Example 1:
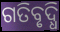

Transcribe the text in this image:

ଗତିବୃଦ୍ଧି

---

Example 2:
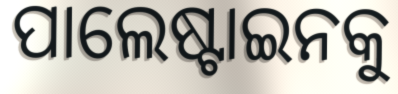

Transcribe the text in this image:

ପାଲେଷ୍ଟାଇନକୁ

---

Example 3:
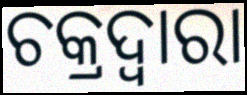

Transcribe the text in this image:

ଚକ୍ରଦ୍ୱାରା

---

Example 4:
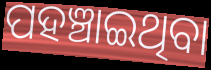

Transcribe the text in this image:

ପହଞ୍ଚାଇଥିବା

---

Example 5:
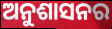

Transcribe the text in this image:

ଅନୁଶାସନର